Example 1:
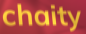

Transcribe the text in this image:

chaity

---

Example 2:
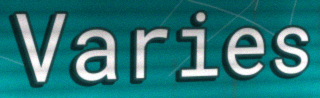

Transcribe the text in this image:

Varies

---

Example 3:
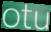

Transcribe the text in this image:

otu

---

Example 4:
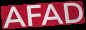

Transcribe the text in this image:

AFAD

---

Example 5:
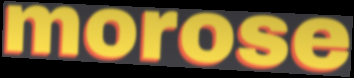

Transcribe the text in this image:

morose